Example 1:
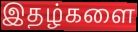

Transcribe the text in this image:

இதழ்களை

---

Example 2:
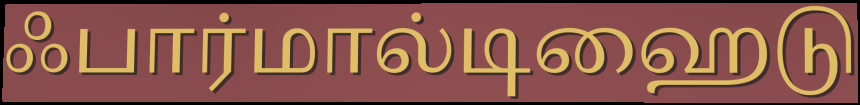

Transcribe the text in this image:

ஃபார்மால்டிஹைடு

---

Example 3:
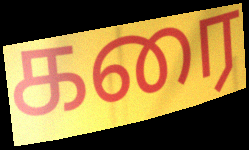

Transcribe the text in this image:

கரை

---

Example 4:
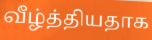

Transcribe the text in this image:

வீழ்த்தியதாக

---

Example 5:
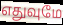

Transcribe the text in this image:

எதுவுமே